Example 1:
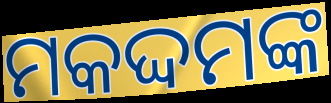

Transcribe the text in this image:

ମକଦ୍ଦମଙ୍କ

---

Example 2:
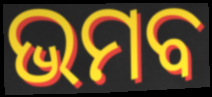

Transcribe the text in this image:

ଭମବ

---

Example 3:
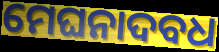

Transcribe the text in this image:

ମେଘନାଦବଧ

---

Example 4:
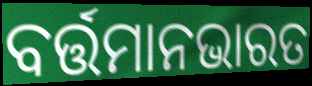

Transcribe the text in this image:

ବର୍ତ୍ତମାନଭାରତ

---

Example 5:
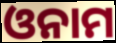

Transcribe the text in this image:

ଓନାମ